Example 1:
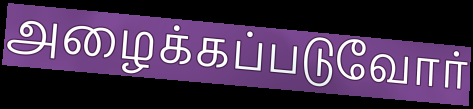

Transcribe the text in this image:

அழைக்கப்படுவோர்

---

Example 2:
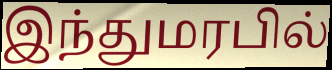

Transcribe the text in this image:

இந்துமரபில்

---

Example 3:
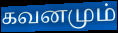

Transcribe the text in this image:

கவனமும்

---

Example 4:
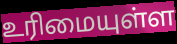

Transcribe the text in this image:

உரிமையுள்ள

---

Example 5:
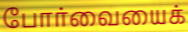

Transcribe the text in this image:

போர்வையைக்